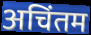
अचिंतम